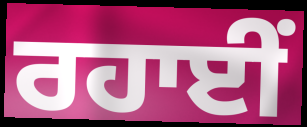
ਰਹਾਈਂ